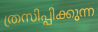
ത്രസിപ്പിക്കുന്ന